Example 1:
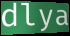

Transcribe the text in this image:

dlya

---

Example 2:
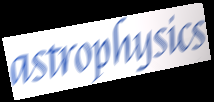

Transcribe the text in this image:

astrophysics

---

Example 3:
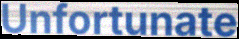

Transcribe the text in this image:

Unfortunate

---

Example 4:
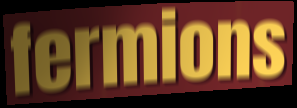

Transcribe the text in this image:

fermions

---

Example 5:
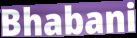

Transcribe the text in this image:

Bhabani